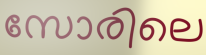
സോരിലെ